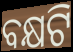
ବକ୍ଷଟି